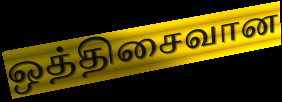
ஒத்திசைவான